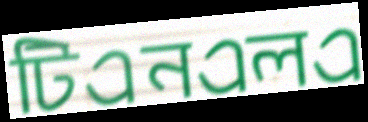
টিএনএলএ